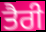
ਤੈਰੀ